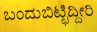
ಬಂದುಬಿಟ್ಟಿದ್ದೀರಿ